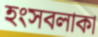
হংসবলাকা